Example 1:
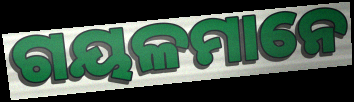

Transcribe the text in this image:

ଗୟଳମାନେ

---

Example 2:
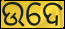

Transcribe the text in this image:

ଉଦେ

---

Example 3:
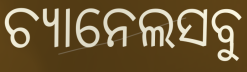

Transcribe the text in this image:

ଚ୍ୟାନେଲସବୁ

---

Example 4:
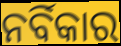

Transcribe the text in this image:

ନର୍ବିକାର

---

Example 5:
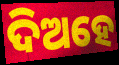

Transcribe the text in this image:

ଦିଅହେ